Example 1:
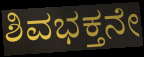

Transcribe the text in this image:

ಶಿವಭಕ್ತನೇ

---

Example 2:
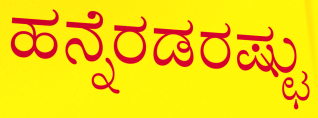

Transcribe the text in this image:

ಹನ್ನೆರಡರಷ್ಟು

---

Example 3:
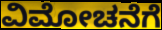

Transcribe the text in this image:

ವಿಮೋಚನೆಗೆ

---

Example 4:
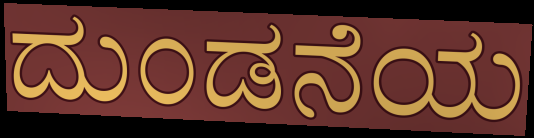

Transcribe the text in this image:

ದುಂಡನೆಯ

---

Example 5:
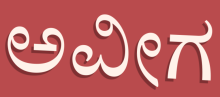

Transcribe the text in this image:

ಅವೀಗ